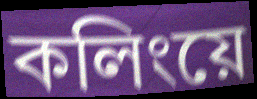
কলিংয়ে